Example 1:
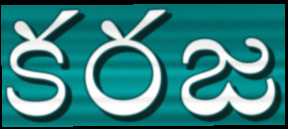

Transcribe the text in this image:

కరజ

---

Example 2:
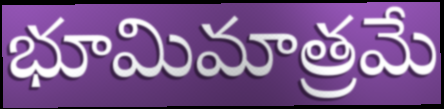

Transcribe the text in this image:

భూమిమాత్రమే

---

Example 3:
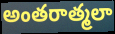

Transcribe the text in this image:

అంతరాత్మలా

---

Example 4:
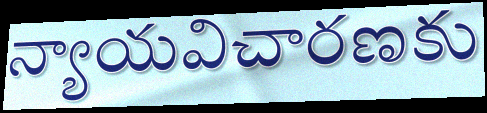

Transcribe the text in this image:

న్యాయవిచారణకు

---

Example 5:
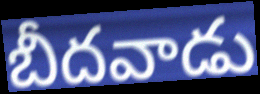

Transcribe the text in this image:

బీదవాడు